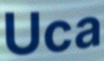
Uca